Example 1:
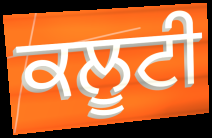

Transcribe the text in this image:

ਕਲੂਟੀ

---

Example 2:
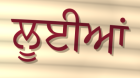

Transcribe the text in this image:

ਲੂਈਆਂ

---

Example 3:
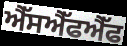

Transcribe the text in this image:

ਐੱਸਐੱਫਐੱਫ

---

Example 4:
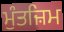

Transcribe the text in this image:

ਮੁੰਤਜ਼ਿਮ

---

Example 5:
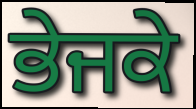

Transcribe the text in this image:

ਭੇਜਕੇ